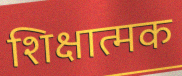
शिक्षात्मक